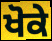
ਖੋਕੇ